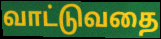
வாட்டுவதை